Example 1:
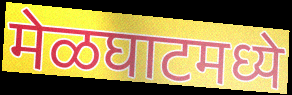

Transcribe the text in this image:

मेळघाटमध्ये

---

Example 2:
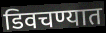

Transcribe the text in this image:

डिवचण्यात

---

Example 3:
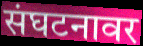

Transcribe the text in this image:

संघटनावर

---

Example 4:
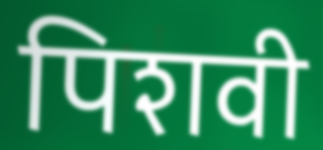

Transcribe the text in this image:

पिशवी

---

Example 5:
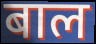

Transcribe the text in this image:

बाल